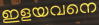
ഇളയവനെ